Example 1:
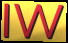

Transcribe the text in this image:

IW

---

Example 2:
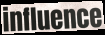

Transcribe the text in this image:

influence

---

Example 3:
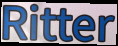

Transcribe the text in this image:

Ritter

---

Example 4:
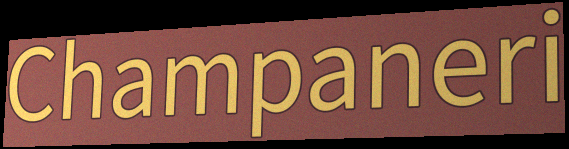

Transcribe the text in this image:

Champaneri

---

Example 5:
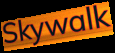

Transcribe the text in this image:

Skywalk